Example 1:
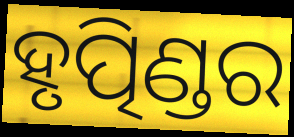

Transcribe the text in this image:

ହୃତ୍ପିଣ୍ଡର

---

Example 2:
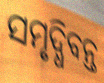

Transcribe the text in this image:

ସମୃଦ୍ଧିବନ୍ତ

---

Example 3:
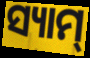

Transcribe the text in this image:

ସ୍ୟାମ୍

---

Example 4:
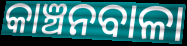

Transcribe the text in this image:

କାଞ୍ଚନବାଳା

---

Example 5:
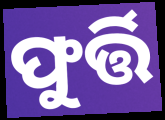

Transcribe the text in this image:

ଫୁର୍ତ୍ତି